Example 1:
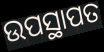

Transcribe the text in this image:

ଉପସ୍ଥାପତ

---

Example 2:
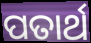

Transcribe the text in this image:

ପତାର୍ଥ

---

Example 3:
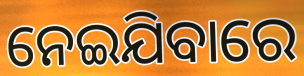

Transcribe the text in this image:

ନେଇଯିବାରେ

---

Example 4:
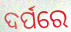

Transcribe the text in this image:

ଦର୍ପରେ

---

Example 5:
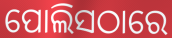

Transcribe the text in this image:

ପୋଲିସଠାରେ